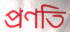
প্ৰণতি